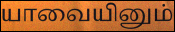
யாவையினும்